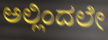
ಅಲ್ಲಿಂದಲೇ